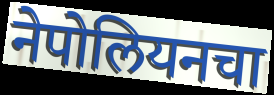
नेपोलियनचा